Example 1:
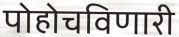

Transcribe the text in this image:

पोहोचविणारी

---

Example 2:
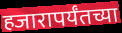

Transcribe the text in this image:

हजारापर्यंतच्या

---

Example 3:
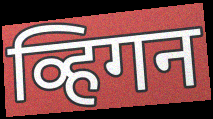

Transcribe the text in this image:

व्हिगन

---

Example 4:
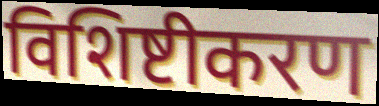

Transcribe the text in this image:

विशिष्टीकरण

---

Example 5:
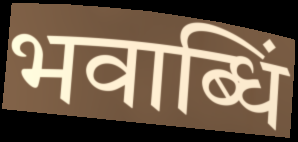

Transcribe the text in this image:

भवाब्धिं